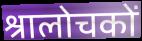
श्रालोचकों